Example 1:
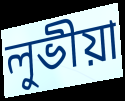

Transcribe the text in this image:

লুভীয়া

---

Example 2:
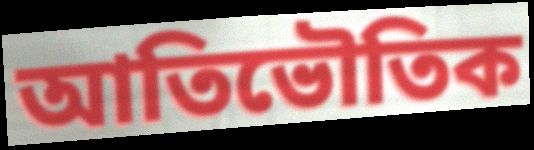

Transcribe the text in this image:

আতিভৌতিক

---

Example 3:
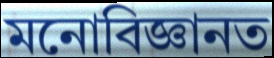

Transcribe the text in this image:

মনোবিজ্ঞানত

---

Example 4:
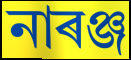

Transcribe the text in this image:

নাৰঞ্জ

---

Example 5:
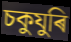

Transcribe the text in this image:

চকুযুৰি